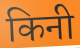
किनी